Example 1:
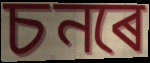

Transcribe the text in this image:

চনৰে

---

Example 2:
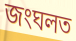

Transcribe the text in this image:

জংঘলত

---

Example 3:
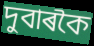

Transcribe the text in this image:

দুবাৰকৈ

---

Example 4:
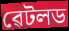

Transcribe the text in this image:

ৱেটলড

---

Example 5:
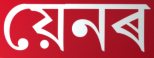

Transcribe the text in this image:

য়েনৰ